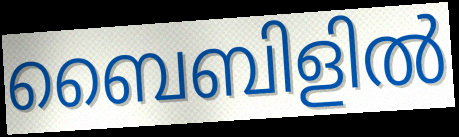
ബൈബിളിൽ